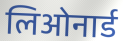
लिओनार्ड